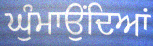
ਘੁੰਮਾਉਂਦਿਆਂ